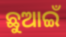
ଛୁଆଇଁ